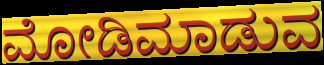
ಮೋಡಿಮಾಡುವ